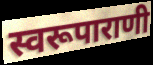
स्वरूपाराणी